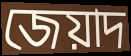
জেয়াদ